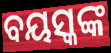
ବୟସ୍କଙ୍କ